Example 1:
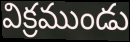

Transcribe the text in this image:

విక్రముండు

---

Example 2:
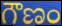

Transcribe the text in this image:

గౌణం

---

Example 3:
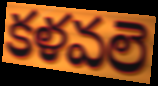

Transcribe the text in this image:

కళవలె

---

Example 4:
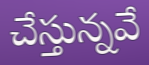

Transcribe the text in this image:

చేస్తున్నవే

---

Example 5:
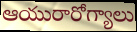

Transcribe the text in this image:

ఆయురారోగ్యాలు